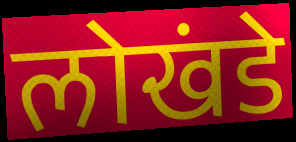
लोखंडे